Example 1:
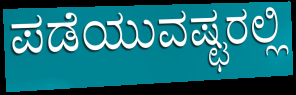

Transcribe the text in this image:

ಪಡೆಯುವಷ್ಟರಲ್ಲಿ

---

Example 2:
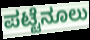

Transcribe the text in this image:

ಪಟ್ಟೆನೂಲು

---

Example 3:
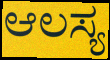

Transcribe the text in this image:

ಆಲಸ್ಯ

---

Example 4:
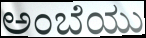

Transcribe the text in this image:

ಅಂಬೆಯು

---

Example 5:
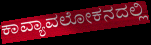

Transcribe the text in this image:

ಕಾವ್ಯಾವಲೋಕನದಲ್ಲಿ